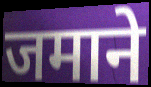
जमाने